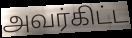
அவர்கிட்ட